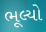
ભૂલ્યો